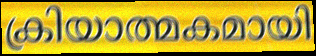
ക്രിയാത്മകമായി